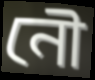
নৌ